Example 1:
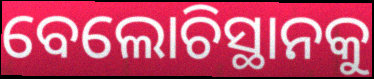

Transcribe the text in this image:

ବେଲୋଚିସ୍ଥାନକୁ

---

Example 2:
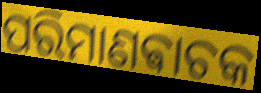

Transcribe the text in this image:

ପରିମାଣଵାଚକ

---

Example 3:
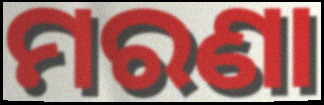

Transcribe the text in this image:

ମରଣା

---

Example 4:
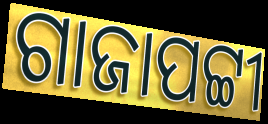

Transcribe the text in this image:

ଗାଜାପଟ୍ଟୀ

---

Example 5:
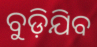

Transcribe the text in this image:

ବୁଡ଼ିଯିବ